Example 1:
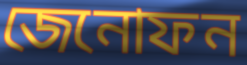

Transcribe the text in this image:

জেনোফন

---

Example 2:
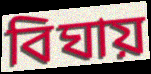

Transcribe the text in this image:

বিঘায়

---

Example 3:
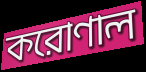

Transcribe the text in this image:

করোণাল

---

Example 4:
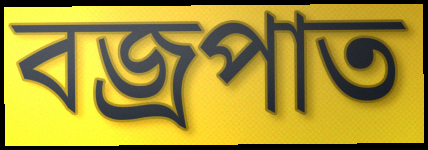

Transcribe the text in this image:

বজ্রপাত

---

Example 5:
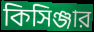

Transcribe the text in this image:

কিসিঞ্জার